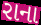
રાના